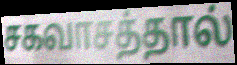
சகவாசத்தால்